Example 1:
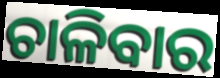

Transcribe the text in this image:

ଚାଳିବାର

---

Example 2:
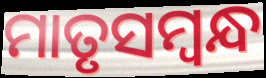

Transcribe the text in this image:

ମାତୃସମ୍ବନ୍ଧ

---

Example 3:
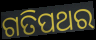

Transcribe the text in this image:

ଗତିପଥର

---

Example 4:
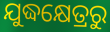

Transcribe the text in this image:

ଯୁଦ୍ଧକ୍ଷେତ୍ରରୁ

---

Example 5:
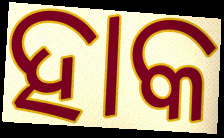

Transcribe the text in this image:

ହାକ